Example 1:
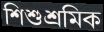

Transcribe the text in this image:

শিশুশ্ৰমিক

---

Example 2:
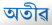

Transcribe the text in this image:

অতীৱ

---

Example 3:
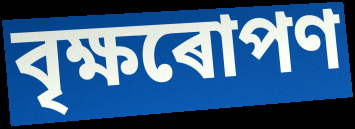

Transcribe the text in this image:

বৃক্ষৰোপণ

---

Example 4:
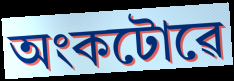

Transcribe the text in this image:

অংকটোৱে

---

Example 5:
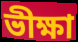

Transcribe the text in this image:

ভীক্ষা